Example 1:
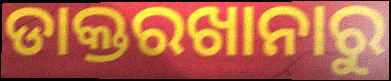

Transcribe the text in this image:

ଡାକ୍ତରଖାନାରୁ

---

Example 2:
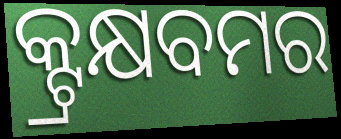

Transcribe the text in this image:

କ୍ଟ୍ରକ୍ଷବମର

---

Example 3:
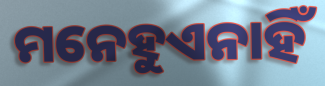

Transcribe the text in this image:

ମନେହୁଏନାହିଁ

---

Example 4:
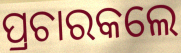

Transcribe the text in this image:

ପ୍ରଚାରକଲେ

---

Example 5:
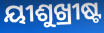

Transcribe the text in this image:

ୟୀଶୁଖ୍ରୀଷ୍ଟ